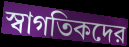
স্বাগতিকদের